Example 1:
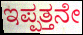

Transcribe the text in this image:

ಇಪ್ಪತ್ತನೇ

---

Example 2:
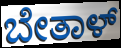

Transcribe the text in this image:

ಬೇತಾಳ್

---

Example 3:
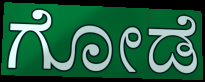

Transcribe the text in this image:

ಗೋಡೆ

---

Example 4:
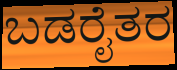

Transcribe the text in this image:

ಬಡರೈತರ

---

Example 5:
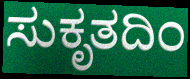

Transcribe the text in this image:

ಸುಕೃತದಿಂ